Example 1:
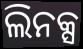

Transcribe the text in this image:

ଲିନକ୍ସ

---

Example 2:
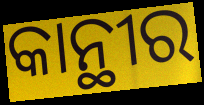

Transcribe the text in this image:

କାନ୍ଥୀର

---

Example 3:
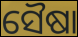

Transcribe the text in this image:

ସୈଷା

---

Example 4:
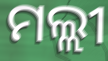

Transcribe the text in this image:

ମଲ୍ଲୀ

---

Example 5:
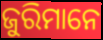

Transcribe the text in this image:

ଜୁରିମାନେ